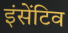
इंसेंटिव